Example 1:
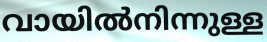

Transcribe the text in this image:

വായിൽനിന്നുള്ള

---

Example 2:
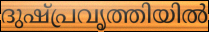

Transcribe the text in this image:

ദുഷ്പ്രവൃത്തിയിൽ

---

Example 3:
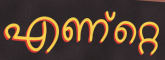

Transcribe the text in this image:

എണ്റ്റെ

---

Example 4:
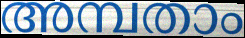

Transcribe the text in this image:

അമ്പതാം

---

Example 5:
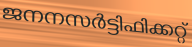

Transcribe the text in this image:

ജനനസർട്ടിഫിക്കറ്റ്